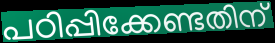
പഠിപ്പിക്കേണ്ടതിന്